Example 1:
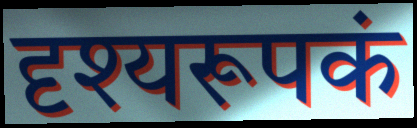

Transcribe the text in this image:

दृश्‍यरूपकं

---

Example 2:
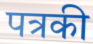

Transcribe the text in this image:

पत्रकी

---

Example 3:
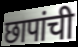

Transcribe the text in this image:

छापांची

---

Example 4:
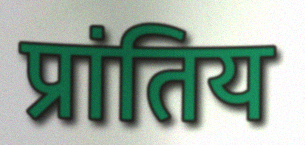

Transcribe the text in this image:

प्रांतिय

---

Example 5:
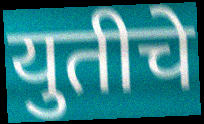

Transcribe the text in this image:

युतीचे